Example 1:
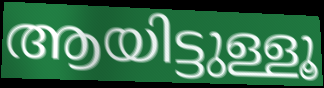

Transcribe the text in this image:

ആയിട്ടുള്ളൂ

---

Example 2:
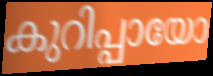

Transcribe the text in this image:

കുറിപ്പായോ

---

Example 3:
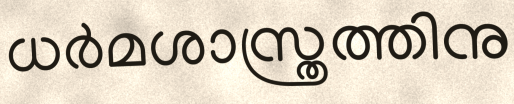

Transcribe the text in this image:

ധർമശാസ്ത്രത്തിനു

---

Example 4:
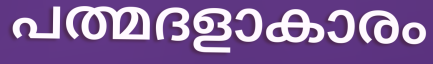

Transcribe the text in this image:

പത്മദളാകാരം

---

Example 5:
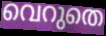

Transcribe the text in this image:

വെറുതെ